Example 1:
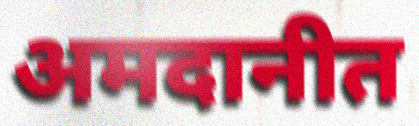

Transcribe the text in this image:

अमदानीत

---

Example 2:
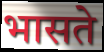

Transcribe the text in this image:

भासते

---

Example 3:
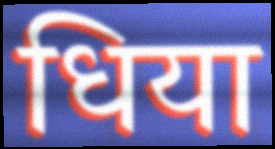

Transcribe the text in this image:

धिया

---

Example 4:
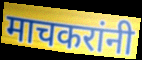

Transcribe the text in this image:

माचकरांनी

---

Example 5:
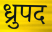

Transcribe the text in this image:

ध्रुपद